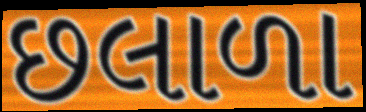
છલાળા